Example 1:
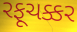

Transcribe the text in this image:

રફૂચક્કર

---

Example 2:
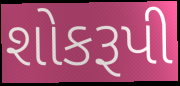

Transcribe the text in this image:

શોકરૂપી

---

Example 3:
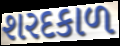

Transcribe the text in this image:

શરદકાળ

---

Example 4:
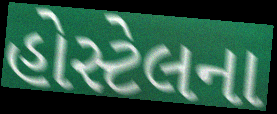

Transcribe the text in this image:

હોસ્ટેલના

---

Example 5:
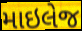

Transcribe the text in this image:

માઇલેજ